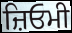
ਜ਼ਿਓਮੀ